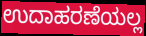
ಉದಾಹರಣೆಯಲ್ಲ